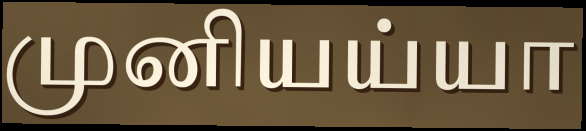
முனியய்யா